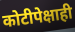
कोटीपेक्षाही